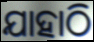
ଯାହାଠି